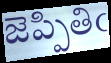
జెప్పితిఁ